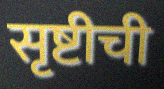
सृष्टीची